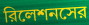
রিলেশনসের